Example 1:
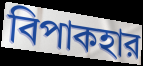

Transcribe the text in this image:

বিপাকহার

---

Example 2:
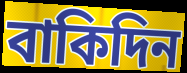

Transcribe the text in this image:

বাকিদিন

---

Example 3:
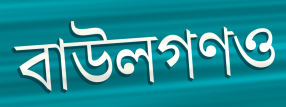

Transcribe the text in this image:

বাউলগণও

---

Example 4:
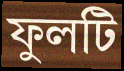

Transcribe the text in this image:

ফুলটি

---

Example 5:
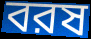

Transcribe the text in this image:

বরষ